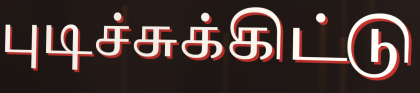
புடிச்சுக்கிட்டு